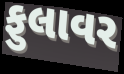
ફુલાવર